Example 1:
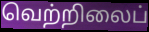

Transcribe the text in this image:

வெற்றிலைப்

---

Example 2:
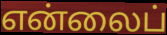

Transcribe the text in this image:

என்லைப்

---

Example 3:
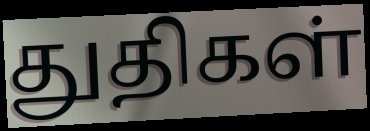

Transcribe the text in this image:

துதிகள்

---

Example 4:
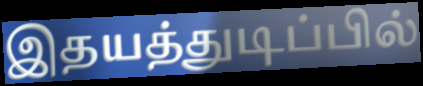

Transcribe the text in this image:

இதயத்துடிப்பில்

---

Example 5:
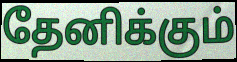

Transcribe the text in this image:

தேனிக்கும்